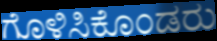
ಗೊಳಿಸಿಕೊಂಡರು